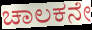
ಚಾಲಕನೇ